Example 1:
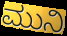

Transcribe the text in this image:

ಮುನಿ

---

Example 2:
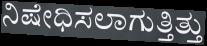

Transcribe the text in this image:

ನಿಷೇಧಿಸಲಾಗುತ್ತಿತ್ತು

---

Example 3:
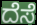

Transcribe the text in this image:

ದೆಸೆ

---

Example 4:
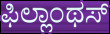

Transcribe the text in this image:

ಫಿಲ್ಲಾಂಥಸ್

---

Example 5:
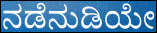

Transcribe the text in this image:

ನಡೆನುಡಿಯೇ